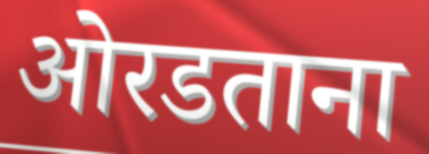
ओरडताना